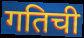
गतिची